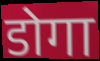
डोगा